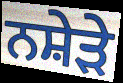
ਨਸ਼ੇੜੇ